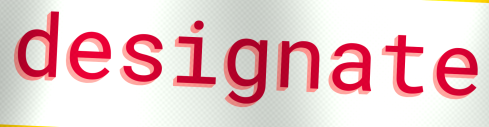
designate